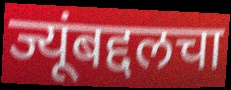
ज्यूंबद्दलचा